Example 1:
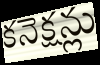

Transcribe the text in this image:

కనెక్షన్లు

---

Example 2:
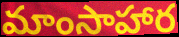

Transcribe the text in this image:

మాంసాహార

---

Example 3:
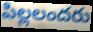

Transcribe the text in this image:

పిల్లలందరు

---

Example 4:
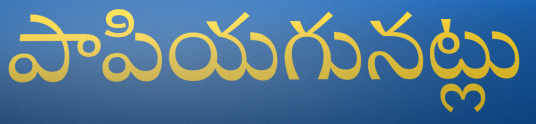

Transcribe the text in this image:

పాపియగునట్లు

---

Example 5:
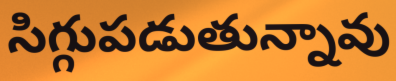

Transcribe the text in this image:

సిగ్గుపడుతున్నావు